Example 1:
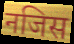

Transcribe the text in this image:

नजिस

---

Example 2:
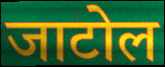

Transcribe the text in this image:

जाटोल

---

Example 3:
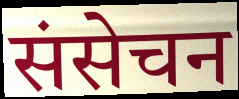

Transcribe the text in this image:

संसेचन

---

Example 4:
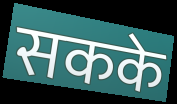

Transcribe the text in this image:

सकके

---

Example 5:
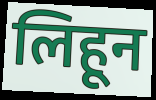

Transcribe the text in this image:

लिहून